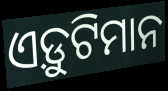
ଏଡ଼ୁଟିମାନ